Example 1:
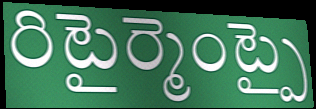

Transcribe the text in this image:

రిటైర్మెంట్పై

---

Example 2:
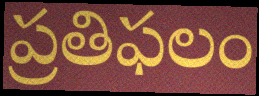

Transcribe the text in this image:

ప్రతిఫలం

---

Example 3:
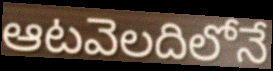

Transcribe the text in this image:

ఆటవెలదిలోనే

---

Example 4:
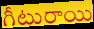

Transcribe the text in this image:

గీటురాయి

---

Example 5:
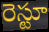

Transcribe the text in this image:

రెస్టూ